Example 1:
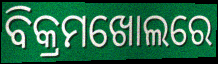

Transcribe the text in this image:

ବିକ୍ରମଖୋଲରେ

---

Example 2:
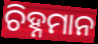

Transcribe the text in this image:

ଚିହ୍ନମାନ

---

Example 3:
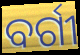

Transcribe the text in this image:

ବର୍ଗୀ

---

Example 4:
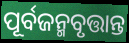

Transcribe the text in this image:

ପୂର୍ବଜନ୍ମବୃତ୍ତାନ୍ତ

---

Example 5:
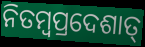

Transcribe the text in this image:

ନିତମ୍ବପ୍ରଦେଶାତ୍